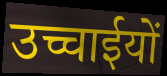
उच्चाईयों